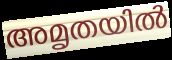
അമൃതയിൽ